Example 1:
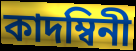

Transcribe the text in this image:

কাদম্বিনী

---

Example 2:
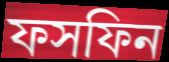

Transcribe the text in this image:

ফসফিন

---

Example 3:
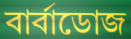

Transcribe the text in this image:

বার্বাডোজ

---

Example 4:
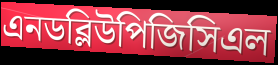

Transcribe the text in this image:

এনডব্লিউপিজিসিএল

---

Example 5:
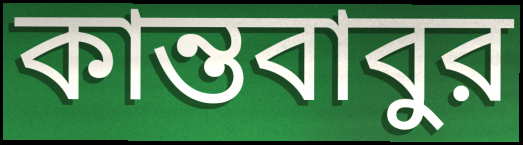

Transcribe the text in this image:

কান্তবাবুর